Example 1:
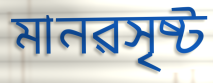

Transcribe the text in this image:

মানৱসৃষ্ট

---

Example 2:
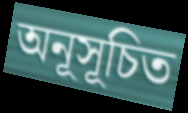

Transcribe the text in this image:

অনূসূচিত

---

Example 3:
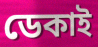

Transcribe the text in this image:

ডেকাই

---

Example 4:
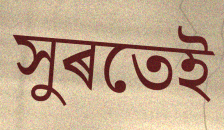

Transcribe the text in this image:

সুৰতেই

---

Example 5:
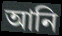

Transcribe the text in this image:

আনি